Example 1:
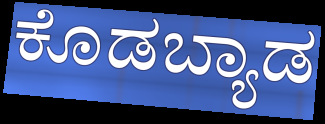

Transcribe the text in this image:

ಕೊಡಬ್ಯಾಡ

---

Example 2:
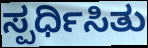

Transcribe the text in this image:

ಸ್ಪರ್ಧಿಸಿತು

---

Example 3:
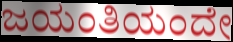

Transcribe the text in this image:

ಜಯಂತಿಯಂದೇ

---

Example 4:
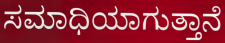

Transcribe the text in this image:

ಸಮಾಧಿಯಾಗುತ್ತಾನೆ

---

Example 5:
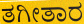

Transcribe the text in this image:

ತಗೀತಾರ